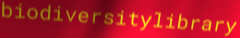
biodiversitylibrary